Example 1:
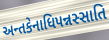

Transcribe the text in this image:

અન્તકેનાધિપન્નસ્સાતિ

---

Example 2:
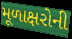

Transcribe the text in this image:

મૂળાક્ષરોની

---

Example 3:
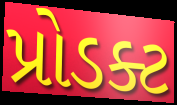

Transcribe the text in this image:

પ્રોડક્ટ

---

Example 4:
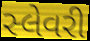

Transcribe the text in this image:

સ્લેવરી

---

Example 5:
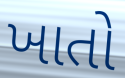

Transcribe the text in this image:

ખાતો